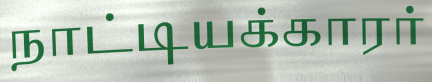
நாட்டியக்காரர்